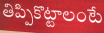
తిప్పికొట్టాలంటే